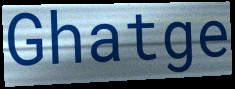
Ghatge